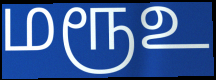
மரூஉ